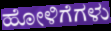
ಹೋಳಿಗೆಗಳು